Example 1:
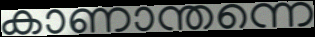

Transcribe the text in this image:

കാണാന്തന്നെ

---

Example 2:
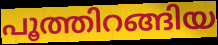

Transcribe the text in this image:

പൂത്തിറങ്ങിയ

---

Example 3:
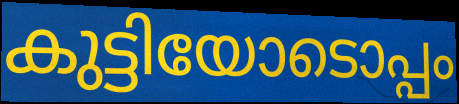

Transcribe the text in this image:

കുട്ടിയോടൊപ്പം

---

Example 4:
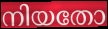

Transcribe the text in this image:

നിയതോ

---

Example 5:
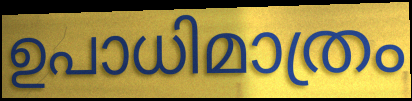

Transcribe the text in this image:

ഉപാധിമാത്രം